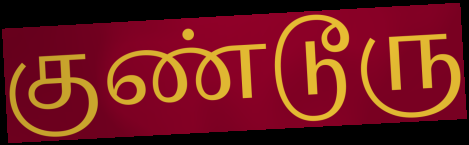
குண்டூரு